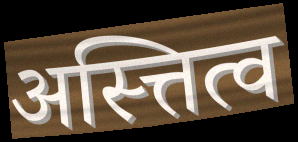
अस्त्तित्व